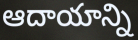
ఆదాయాన్ని